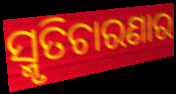
ସ୍ମୃତିଚାରଣାର